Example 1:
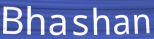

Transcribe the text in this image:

Bhashan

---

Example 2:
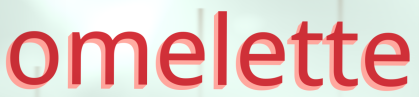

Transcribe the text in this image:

omelette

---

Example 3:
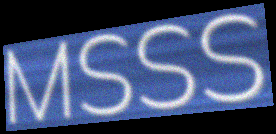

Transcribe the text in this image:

MSSS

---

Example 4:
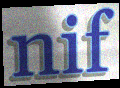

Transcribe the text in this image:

nif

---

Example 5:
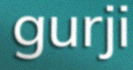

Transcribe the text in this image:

gurji